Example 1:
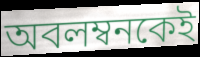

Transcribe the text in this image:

অবলম্বনকেই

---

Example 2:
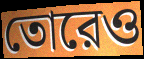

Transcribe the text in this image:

তোরেও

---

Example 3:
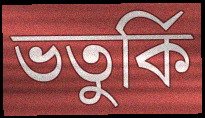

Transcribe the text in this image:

ভতুর্কি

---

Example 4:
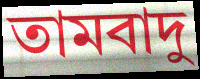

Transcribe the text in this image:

তামবাদু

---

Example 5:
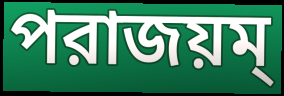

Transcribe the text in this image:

পরাজয়ম্